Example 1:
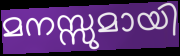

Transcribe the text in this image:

മനസ്സുമായി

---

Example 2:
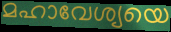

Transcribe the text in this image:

മഹാവേശ്യയെ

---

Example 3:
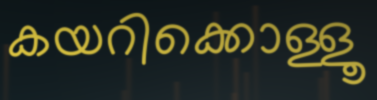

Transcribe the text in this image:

കയറിക്കൊള്ളൂ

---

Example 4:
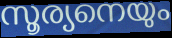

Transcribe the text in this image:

സൂര്യനെയും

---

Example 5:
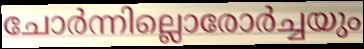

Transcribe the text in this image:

ചോർന്നില്ലൊരോർച്ചയും